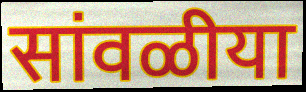
सांवळीया